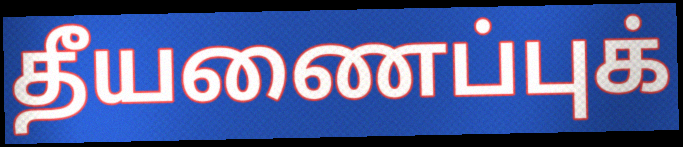
தீயணைப்புக்